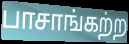
பாசாங்கற்ற